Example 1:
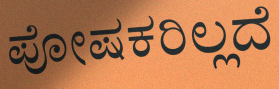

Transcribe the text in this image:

ಪೋಷಕರಿಲ್ಲದೆ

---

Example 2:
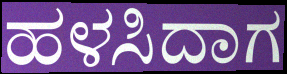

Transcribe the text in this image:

ಹಳಸಿದಾಗ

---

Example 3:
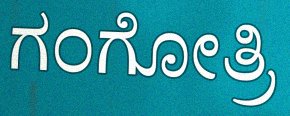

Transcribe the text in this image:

ಗಂಗೋತ್ರಿ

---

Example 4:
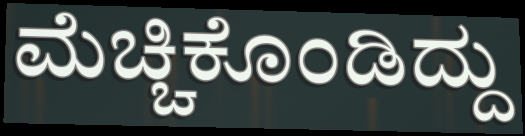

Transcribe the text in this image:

ಮೆಚ್ಚಿಕೊಂಡಿದ್ದು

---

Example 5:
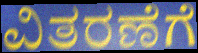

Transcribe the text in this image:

ವಿತರಣೆಗೆ